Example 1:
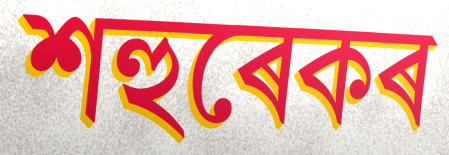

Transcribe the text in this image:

শহুৰেকৰ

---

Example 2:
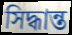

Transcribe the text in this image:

সিদ্ধান্ত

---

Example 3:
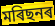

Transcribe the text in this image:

মৰিছনৰ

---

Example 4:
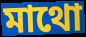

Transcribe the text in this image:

মাথো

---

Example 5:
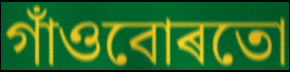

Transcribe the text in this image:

গাঁওবোৰতো